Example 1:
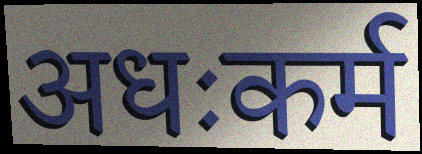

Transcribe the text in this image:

अधःकर्म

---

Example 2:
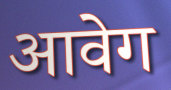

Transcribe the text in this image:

आवेग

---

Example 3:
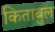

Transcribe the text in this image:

किताबुल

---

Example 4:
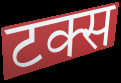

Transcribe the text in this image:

टक्स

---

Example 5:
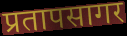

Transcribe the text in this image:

प्रतापसागर